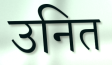
उनित